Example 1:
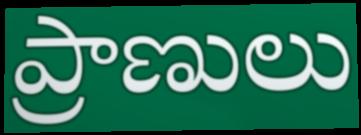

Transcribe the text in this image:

ప్రాణులు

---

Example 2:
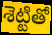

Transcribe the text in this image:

శెట్టితో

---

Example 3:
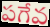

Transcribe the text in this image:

పగేవ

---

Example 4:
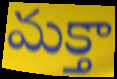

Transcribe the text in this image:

మక్తా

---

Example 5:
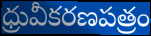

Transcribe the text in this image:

ధ్రువీకరణపత్రం